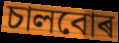
চালবোৰ